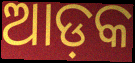
ଆଡ଼କ